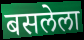
बसलेला